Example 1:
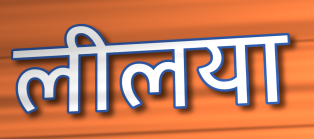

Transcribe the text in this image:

लीलया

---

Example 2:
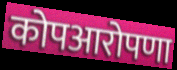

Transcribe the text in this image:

कोपआरोपणा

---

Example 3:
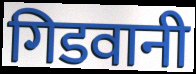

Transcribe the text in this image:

गिडवानी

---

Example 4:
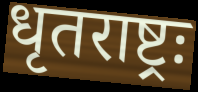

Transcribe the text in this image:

धृतराष्ट्रः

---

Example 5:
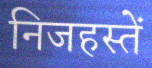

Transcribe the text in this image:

निजहस्तें